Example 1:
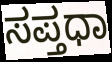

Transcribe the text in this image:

ಸಪ್ತಧಾ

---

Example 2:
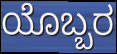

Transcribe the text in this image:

ಯೊಬ್ಬರ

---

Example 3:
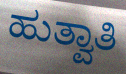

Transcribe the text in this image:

ಹುತ್ವಾತಿ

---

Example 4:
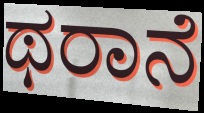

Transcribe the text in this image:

ಥರಾನೆ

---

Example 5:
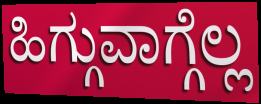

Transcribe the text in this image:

ಹಿಗ್ಗುವಾಗ್ಗೆಲ್ಲ